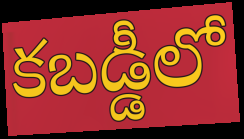
కబడ్డీలో